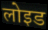
लोइड